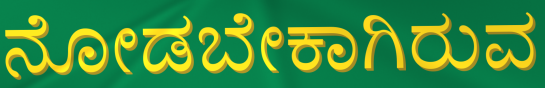
ನೋಡಬೇಕಾಗಿರುವ